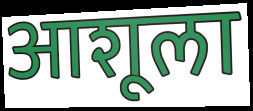
आशूला